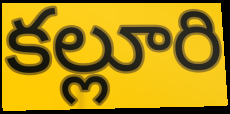
కల్లూరి